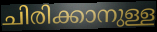
ചിരിക്കാനുള്ള